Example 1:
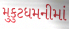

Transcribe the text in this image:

મુકુટધમનીમાં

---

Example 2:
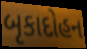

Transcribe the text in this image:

બૃકાદોહન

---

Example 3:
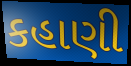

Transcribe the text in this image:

કહાણી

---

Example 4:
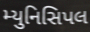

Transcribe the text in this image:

મ્યુનિસિપલ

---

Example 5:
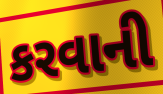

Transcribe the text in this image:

કરવાની